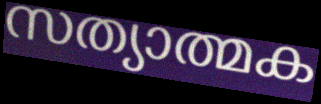
സത്യാത്മക